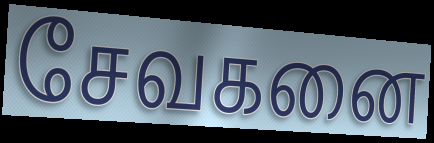
சேவகனை